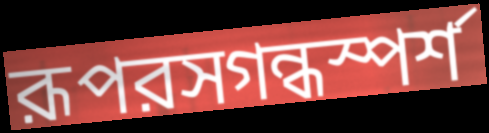
রূপরসগন্ধস্পর্শ